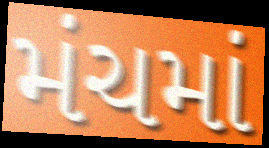
મંચમાં